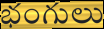
భంగులు